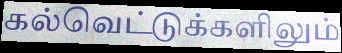
கல்வெட்டுக்களிலும்